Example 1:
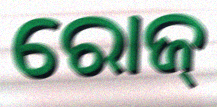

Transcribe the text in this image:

ରୋଜ୍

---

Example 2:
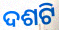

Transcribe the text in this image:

ଦଶଟି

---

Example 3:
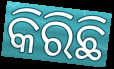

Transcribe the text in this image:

କିରିଛି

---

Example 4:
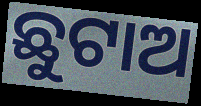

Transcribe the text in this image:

ଛୁଟାଅ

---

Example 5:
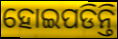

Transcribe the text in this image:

ହୋଇପଡିନ୍ତି